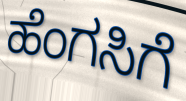
ಹೆಂಗಸಿಗೆ